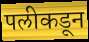
पलीकडून